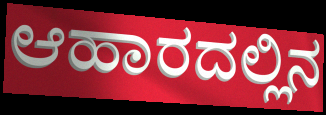
ಆಹಾರದಲ್ಲಿನ